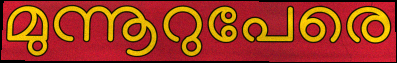
മുന്നൂറുപേരെ